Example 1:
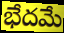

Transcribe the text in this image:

భేదమే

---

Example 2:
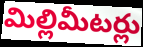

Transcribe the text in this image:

మిల్లిమీటర్లు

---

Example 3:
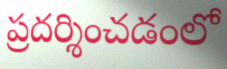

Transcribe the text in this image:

ప్రదర్శించడంలో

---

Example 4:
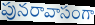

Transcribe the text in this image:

పునరావాసంగా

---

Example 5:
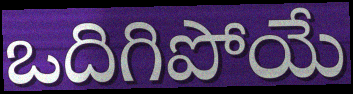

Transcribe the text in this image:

ఒదిగిపోయే